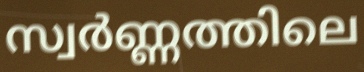
സ്വർണ്ണത്തിലെ